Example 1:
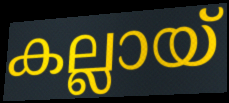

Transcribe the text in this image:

കല്ലായ്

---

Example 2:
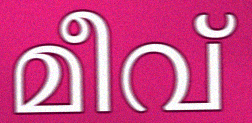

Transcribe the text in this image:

മീവ്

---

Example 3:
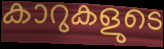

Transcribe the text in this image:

കാറുകളുടെ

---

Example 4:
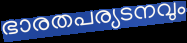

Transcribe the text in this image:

ഭാരതപര്യടനവും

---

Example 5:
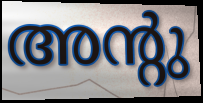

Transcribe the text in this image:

അന്റു